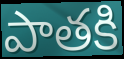
పాతకి